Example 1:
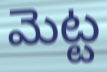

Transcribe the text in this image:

మెట్ట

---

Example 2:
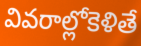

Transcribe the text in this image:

వివరాల్లోకెళితే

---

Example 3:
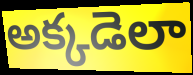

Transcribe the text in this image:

అక్కడెలా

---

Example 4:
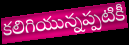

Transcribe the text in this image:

కలిగియున్నప్పటికీ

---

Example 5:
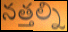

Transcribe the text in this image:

నత్తల్ని